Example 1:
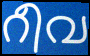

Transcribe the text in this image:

റീവ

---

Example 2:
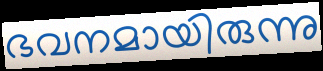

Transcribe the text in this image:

ഭവനമായിരുന്നു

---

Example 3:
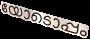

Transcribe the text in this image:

യോടൊപ്പം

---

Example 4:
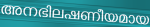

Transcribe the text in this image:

അനഭിലഷണീയമായ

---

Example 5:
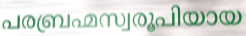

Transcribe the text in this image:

പരബ്രഹ്മസ്വരൂപിയായ